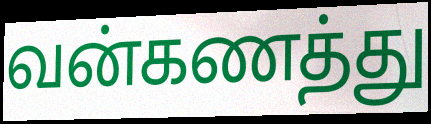
வன்கணத்து